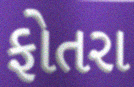
ફોતરા